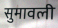
सुमावली